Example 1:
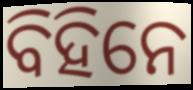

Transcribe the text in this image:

ବିହିନେ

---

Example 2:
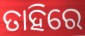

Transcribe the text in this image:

ତାହିରେ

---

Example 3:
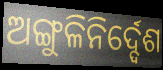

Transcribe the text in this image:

ଅଙ୍ଗୁଳିନିର୍ଦ୍ଦେଶ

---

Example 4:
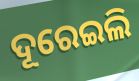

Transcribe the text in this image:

ଦୂରେଇଲି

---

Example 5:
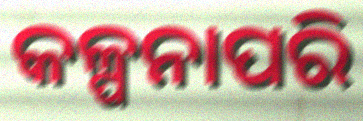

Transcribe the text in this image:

କଳ୍ପନାପରି